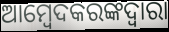
ଆମ୍ବେଦକରଙ୍କଦ୍ୱାରା